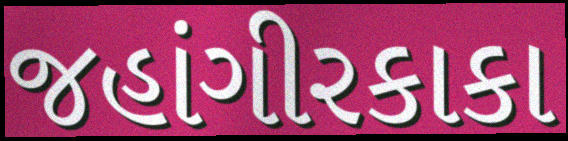
જહાંગીરકાકા